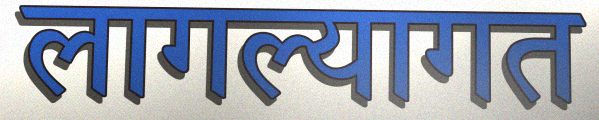
लागल्यागत